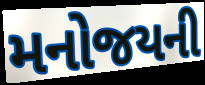
મનોજયની